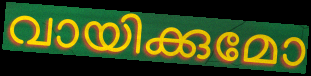
വായിക്കുമോ